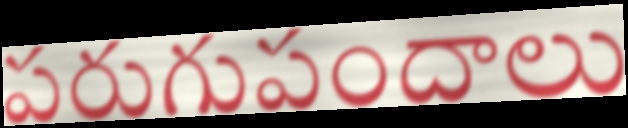
పరుగుపందాలు